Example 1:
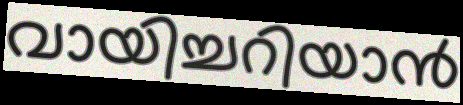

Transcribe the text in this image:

വായിച്ചറിയാൻ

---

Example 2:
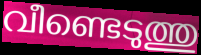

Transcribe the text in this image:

വീണ്ടെടുത്തു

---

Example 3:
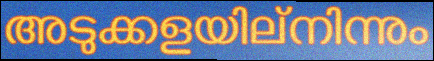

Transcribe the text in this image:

അടുക്കളയില്നിന്നും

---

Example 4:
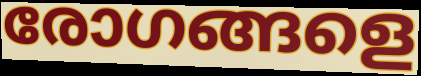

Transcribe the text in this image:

രോഗങ്ങളെ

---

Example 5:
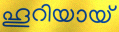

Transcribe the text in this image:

ഹൂറിയായ്